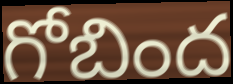
గోబింద